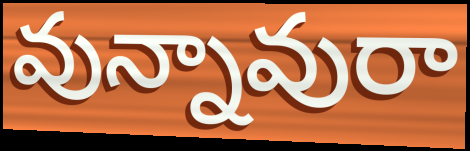
వున్నావురా